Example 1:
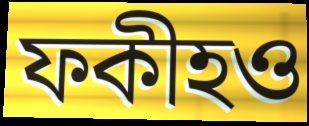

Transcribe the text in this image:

ফকীহও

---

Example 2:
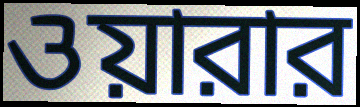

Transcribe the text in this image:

ওয়ারার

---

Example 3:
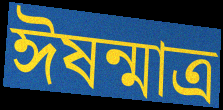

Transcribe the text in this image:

ঈষন্মাত্র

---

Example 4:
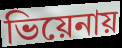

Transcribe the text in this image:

ভিয়েনায়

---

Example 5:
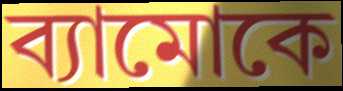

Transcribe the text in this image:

ব্যামোকে